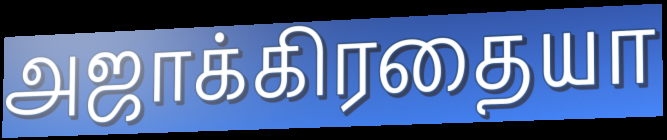
அஜாக்கிரதையா